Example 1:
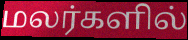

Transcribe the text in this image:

மலர்களில்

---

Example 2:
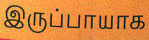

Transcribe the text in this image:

இருப்பாயாக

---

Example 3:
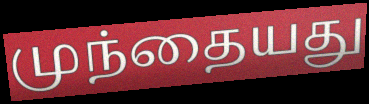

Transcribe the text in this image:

முந்தையது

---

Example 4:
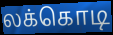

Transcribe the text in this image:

லக்கொடி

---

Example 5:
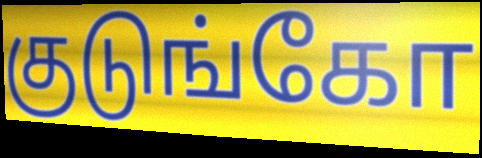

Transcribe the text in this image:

குடுங்கோ